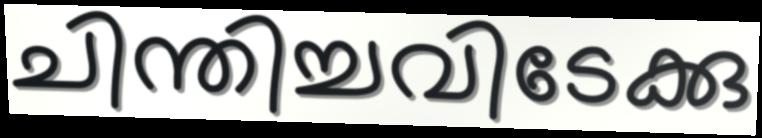
ചിന്തിച്ചവിടേക്കു